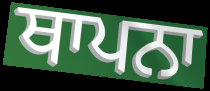
ਥਾਪਨਾ